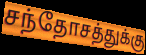
சந்தோசத்துக்கு